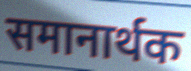
समानार्थक